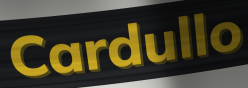
Cardullo